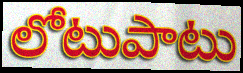
లోటుపాటు